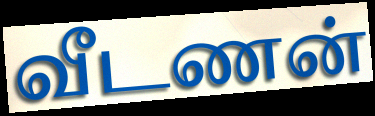
வீடணன்